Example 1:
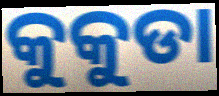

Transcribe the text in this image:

କୁକୁଡା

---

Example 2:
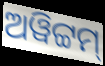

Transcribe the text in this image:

ଅୱିଟ୍ଟମ୍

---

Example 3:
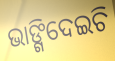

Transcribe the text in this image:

ଭାଙ୍ଗିଦେଇଚି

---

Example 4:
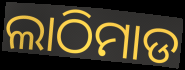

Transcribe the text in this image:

ଲାଠିମାଡ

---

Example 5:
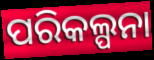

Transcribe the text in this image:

ପରିକଲ୍ପନା